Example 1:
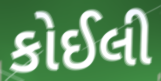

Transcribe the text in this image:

કોઈલી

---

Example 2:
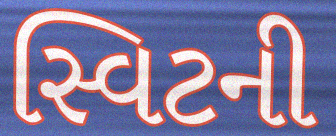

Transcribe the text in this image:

સ્વિટની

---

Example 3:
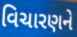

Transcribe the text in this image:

વિચારણને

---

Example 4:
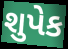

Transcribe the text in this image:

શુપેક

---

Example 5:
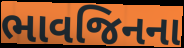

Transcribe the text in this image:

ભાવજિનના